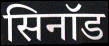
सिनॉड